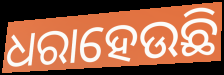
ଧରାହେଉଛି